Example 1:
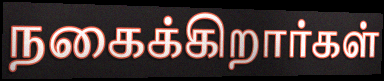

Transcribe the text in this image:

நகைக்கிறார்கள்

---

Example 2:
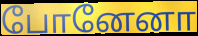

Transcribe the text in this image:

போனேனா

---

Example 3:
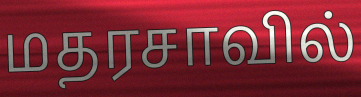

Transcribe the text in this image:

மதரசாவில்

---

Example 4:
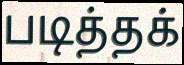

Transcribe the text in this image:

படித்தக்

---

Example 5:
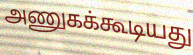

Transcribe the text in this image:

அணுகக்கூடியது